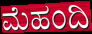
ಮೆಹಂದಿ